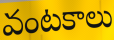
వంటకాలు